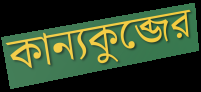
কান্যকুব্জের